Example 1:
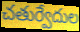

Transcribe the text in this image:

చతుర్వేదుల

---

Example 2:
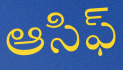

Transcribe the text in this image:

ఆసిఫ్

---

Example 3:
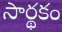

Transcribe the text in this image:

సార్థకం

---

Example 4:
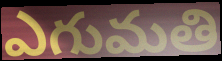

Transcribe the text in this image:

ఎగుమతి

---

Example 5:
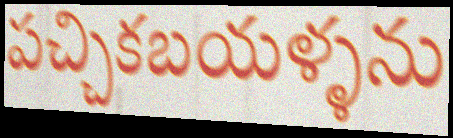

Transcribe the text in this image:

పచ్చికబయళ్ళను